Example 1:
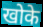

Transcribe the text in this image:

खोके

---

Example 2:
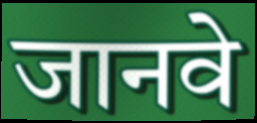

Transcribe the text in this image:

जानवे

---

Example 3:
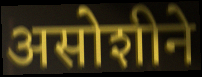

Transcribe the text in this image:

असोशीने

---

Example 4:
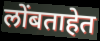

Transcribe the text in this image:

लोंबताहेत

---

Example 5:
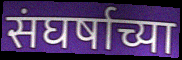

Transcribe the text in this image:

संघर्षाच्या